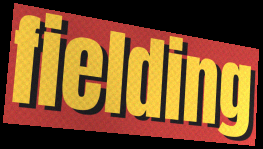
fielding